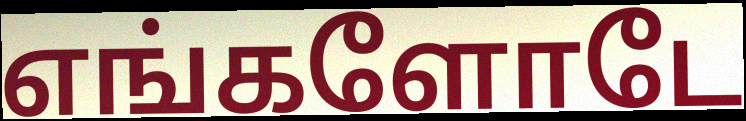
எங்களோடே